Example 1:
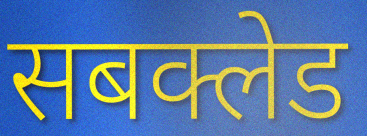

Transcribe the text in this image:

सबक्लेड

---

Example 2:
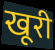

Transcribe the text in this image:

खूरी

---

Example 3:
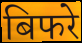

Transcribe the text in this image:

बिफरे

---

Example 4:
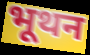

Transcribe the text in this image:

भूथन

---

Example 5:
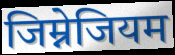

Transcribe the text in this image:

जिम्नेजियम